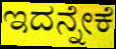
ಇದನ್ನೇಕೆ